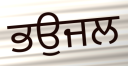
ਭਉਜਲ